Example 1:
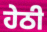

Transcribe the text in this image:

ਹੇਠੀ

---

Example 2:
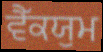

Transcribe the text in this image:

ਵੈੱਕਯੁਮ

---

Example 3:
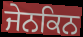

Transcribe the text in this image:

ਜੇਨਕਿਨ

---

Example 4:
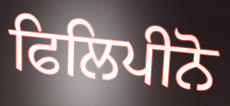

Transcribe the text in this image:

ਫਿਲਿਪੀਨੋ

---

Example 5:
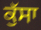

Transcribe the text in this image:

ਕੁੱਸਾ